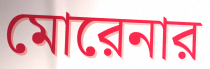
মোরেনার